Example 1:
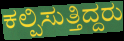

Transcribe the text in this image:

ಕಲ್ಪಿಸುತ್ತಿದ್ದರು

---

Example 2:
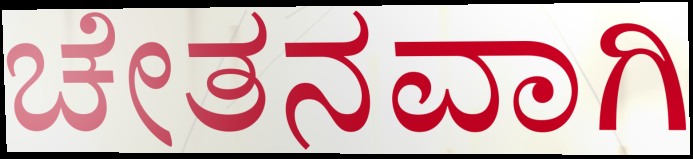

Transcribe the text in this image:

ಚೇತನವಾಗಿ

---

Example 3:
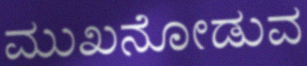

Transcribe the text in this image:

ಮುಖನೋಡುವ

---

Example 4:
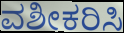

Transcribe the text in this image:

ವಶೀಕರಿಸಿ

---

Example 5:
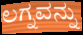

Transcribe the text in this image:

ಲಗ್ನವನ್ನು